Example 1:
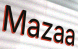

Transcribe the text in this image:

Mazaa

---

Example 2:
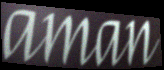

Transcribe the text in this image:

aman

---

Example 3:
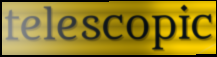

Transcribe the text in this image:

telescopic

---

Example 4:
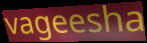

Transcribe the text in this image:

vageesha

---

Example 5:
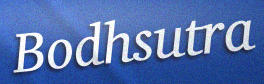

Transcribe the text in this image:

Bodhsutra